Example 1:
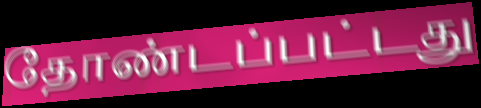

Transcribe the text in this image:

தோண்டப்பட்டது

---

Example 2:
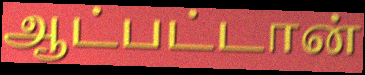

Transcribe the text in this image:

ஆட்பட்டான்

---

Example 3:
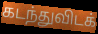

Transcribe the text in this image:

கடந்துவிடக்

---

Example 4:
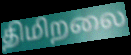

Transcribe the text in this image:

திமிறலை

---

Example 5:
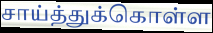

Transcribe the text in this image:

சாய்த்துக்கொள்ள